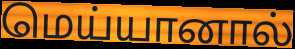
மெய்யானால்